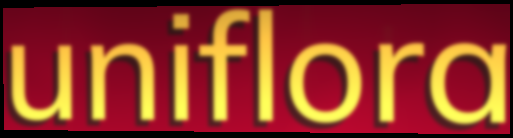
uniflora